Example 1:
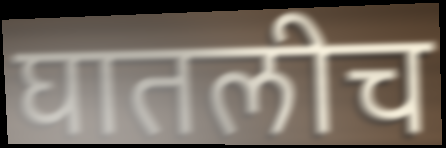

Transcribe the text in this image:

घातलीच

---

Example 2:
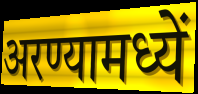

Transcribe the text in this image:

अरण्यामध्यें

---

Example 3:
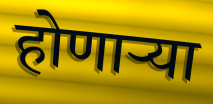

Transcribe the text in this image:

होणाऱ्या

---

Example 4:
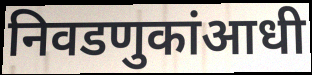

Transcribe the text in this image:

निवडणुकांआधी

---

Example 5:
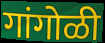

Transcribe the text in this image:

गांगोळी